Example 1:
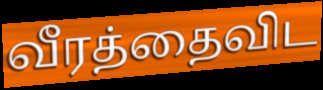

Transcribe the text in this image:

வீரத்தைவிட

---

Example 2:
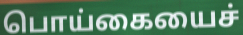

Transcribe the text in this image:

பொய்கையைச்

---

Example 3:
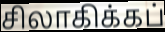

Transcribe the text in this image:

சிலாகிக்கப்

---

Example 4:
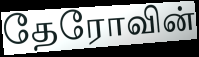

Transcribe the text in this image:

தேரோவின்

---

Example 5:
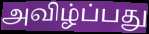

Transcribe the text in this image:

அவிழ்ப்பது